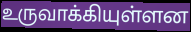
உருவாக்கியுள்ளன